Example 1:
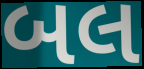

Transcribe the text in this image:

બલ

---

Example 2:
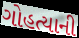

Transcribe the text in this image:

ગોહત્યાની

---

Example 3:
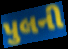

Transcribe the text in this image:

પુલની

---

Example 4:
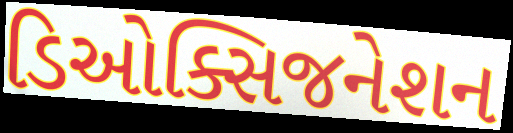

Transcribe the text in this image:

ડિઓક્સિજનેશન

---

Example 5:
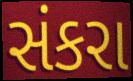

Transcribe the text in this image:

સંકરા